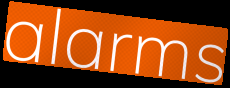
alarms